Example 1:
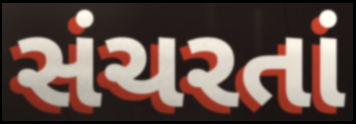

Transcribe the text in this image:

સંચરતાં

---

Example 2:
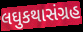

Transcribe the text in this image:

લઘુકથાસંગ્રહ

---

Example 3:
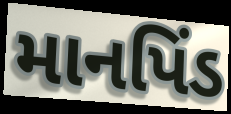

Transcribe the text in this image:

માનપિંડ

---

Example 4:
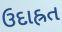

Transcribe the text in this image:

ઉદાહ્રત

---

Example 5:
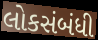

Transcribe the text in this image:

લોકસંબંધી